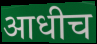
आधीच